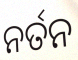
ନର୍ତନ